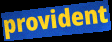
provident